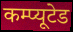
कम्प्यूटेड